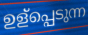
ഉള്പ്പെടുന്ന